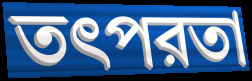
তৎপরতা